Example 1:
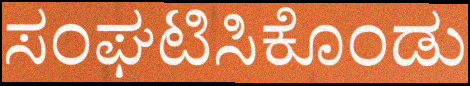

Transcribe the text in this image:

ಸಂಘಟಿಸಿಕೊಂಡು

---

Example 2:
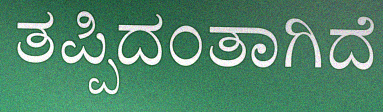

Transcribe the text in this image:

ತಪ್ಪಿದಂತಾಗಿದೆ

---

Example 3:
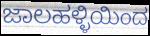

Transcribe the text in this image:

ಜಾಲಹಳ್ಳಿಯಿಂದ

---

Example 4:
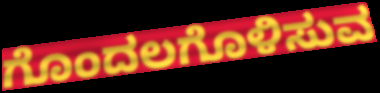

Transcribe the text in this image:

ಗೊಂದಲಗೊಳಿಸುವ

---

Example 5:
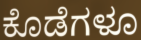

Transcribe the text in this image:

ಕೊಡೆಗಳೂ